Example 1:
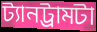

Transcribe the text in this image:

ট্যানট্রামটা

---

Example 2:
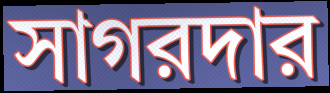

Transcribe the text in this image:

সাগরদার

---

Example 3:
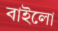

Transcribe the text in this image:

বাইলো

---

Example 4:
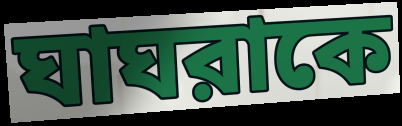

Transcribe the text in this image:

ঘাঘরাকে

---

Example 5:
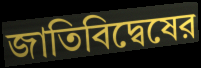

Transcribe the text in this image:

জাতিবিদ্বেষের